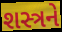
શસ્ત્રને